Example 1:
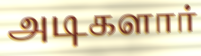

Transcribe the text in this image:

அடிகளார்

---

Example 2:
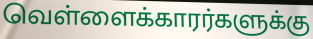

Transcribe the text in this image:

வெள்ளைக்காரர்களுக்கு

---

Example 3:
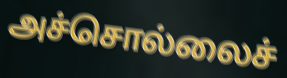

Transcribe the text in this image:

அச்சொல்லைச்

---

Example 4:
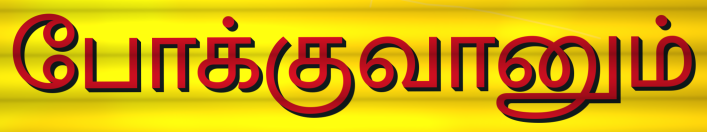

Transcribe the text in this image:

போக்குவானும்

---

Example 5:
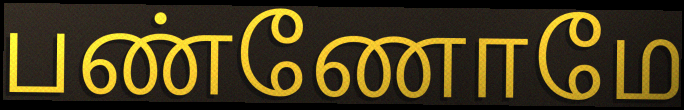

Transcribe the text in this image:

பண்ணோமே